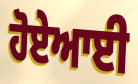
ਹੋਏਆਈ